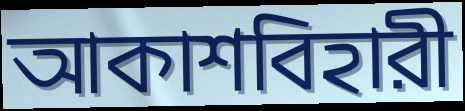
আকাশবিহারী